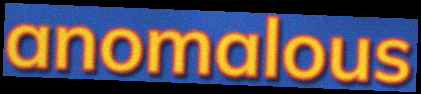
anomalous